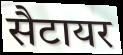
सैटायर